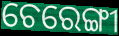
ଚେରେଙ୍ଗୀ